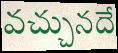
వచ్చునదే